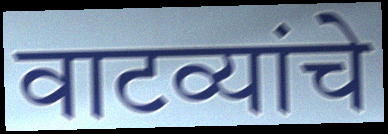
वाटव्यांचे